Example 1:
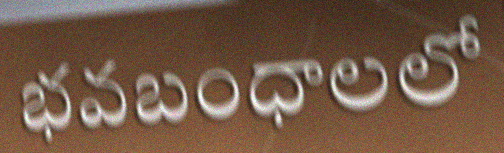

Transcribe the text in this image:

భవబంధాలలో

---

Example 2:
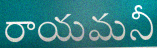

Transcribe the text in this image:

రాయమనీ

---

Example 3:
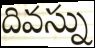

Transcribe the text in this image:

దివస్ను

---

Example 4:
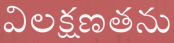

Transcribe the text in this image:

విలక్షణతను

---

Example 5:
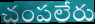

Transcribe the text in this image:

చంపలేరు